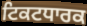
ਟਿਕਟਧਾਰਕ